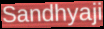
Sandhyaji